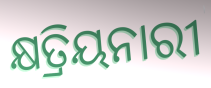
କ୍ଷତ୍ରିୟନାରୀ